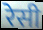
रेसी